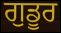
ਗੁਡੂਰ